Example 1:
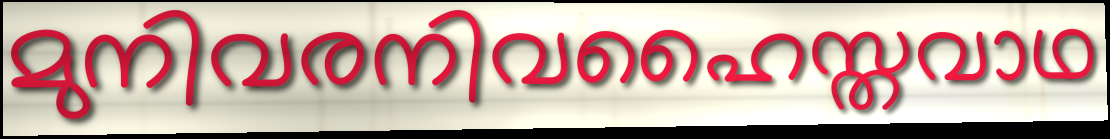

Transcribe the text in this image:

മുനിവരനിവഹൈസ്തവാഥ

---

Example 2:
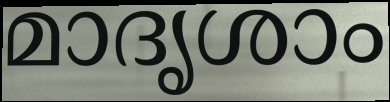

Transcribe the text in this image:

മാദൃശാം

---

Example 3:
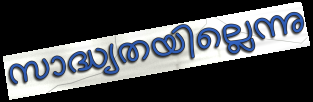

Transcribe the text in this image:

സാദ്ധ്യതയില്ലെന്നു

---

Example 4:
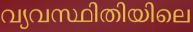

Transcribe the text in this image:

വ്യവസ്ഥിതിയിലെ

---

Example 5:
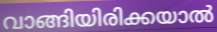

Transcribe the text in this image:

വാങ്ങിയിരിക്കയാൽ